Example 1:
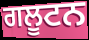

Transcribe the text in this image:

ਗਲੂਟਨ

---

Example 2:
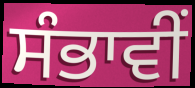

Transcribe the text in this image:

ਸੰਭਾਵੀਂ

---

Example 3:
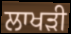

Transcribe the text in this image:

ਲਾਖੜੀ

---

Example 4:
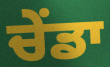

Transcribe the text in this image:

ਚੇਂਡਾ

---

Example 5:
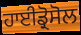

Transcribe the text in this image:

ਹਾਈਡ੍ਰੋਸੋਲ